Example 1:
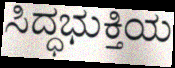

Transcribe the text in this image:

ಸಿದ್ಧಭುಕ್ತಿಯ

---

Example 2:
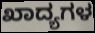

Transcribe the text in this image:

ಖಾದ್ಯಗಳ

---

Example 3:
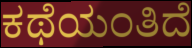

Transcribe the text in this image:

ಕಥೆಯಂತಿದೆ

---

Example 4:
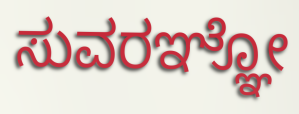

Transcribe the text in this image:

ಸುವರಞ್ಞೋ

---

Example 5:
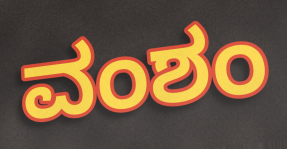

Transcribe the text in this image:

ವಂಶಂ